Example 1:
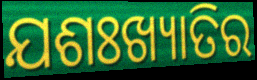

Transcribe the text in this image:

ଯଶଃଖ୍ୟାତିର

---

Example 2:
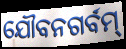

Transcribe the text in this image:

ଯୌବନଗର୍ବମ୍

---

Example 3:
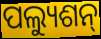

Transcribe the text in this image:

ପଲ୍ୟୁଶନ୍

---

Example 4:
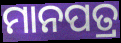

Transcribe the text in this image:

ମାନପତ୍ର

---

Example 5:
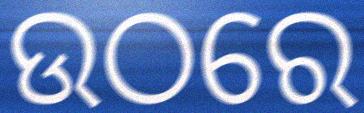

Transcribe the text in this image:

ଉଠରେ